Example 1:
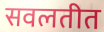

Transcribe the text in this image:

सवलतीत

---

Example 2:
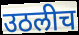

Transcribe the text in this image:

उठलीच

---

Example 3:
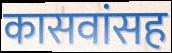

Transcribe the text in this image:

कासवांसह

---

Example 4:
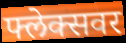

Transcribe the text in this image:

फ्लेक्सवर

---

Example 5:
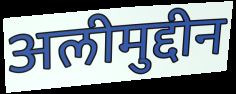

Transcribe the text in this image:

अलीमुद्दीन